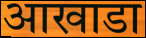
आखाडा